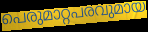
പെരുമാറ്റപരവുമായ